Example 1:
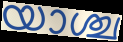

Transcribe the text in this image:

യാശ്ച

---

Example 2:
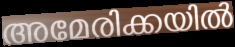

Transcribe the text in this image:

അമേരിക്കയിൽ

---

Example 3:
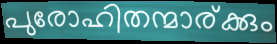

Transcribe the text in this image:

പുരോഹിതന്മാര്ക്കും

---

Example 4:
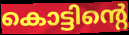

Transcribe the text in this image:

കൊട്ടിന്റെ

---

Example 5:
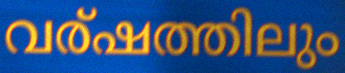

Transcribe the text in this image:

വര്ഷത്തിലും